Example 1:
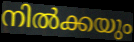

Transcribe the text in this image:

നിൽക്കയും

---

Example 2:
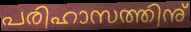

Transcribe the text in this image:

പരിഹാസത്തിനു്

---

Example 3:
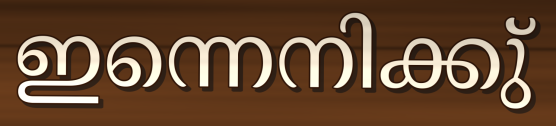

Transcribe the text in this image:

ഇന്നെനിക്കു്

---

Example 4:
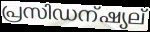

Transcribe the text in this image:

പ്രസിഡന്ഷ്യല്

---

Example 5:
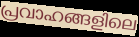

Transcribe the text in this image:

പ്രവാഹങ്ങളിലെ